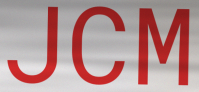
JCM